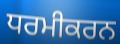
ਧਰਮੀਕਰਨ